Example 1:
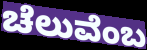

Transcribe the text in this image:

ಚೆಲುವೆಂಬ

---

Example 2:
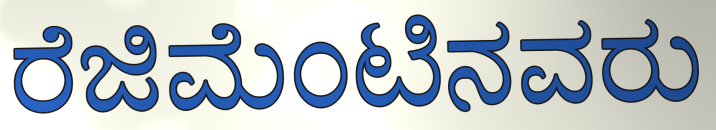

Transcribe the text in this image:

ರೆಜಿಮೆಂಟಿನವರು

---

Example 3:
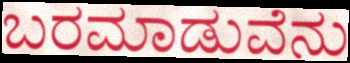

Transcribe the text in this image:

ಬರಮಾಡುವೆನು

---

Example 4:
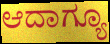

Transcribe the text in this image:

ಆದಾಗ್ಯೂ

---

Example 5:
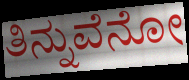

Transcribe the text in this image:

ತಿನ್ನುವೆನೋ